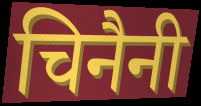
चिनैनी